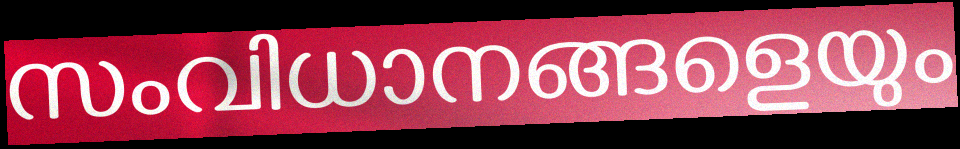
സംവിധാനങ്ങളെയും